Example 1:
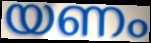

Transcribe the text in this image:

യണം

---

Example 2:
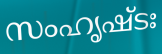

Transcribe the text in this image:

സംഹൃഷ്ടഃ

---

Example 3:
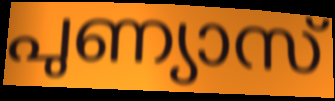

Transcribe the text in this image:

പുണ്യാസ്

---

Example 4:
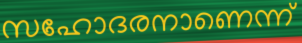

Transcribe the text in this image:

സഹോദരനാണെന്ന്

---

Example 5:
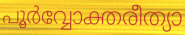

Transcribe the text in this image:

പൂർവ്വോക്തരീത്യാ